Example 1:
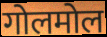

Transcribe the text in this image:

गोलमोल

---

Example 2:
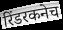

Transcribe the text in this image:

रिंडरकनेच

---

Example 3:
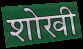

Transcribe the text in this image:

शोखी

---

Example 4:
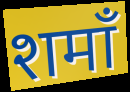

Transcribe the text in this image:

शमाँ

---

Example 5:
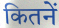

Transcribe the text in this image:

कितनें